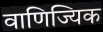
वाणिज्यिक